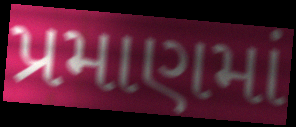
પ્રમાણમાં